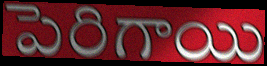
పెరిగాయి